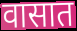
वासात